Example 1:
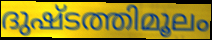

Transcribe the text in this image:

ദുഷ്ടത്തിമൂലം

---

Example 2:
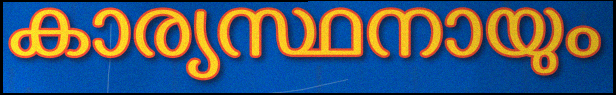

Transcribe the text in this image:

കാര്യസ്ഥനായും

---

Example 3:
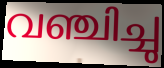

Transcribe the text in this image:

വഞ്ചിച്ചു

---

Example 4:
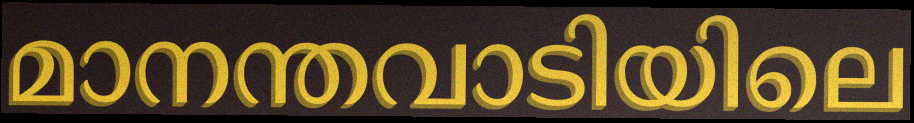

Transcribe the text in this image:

മാനന്തവാടിയിലെ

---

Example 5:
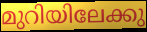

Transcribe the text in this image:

മുറിയിലേക്കു